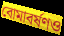
বোমাবর্ষণও